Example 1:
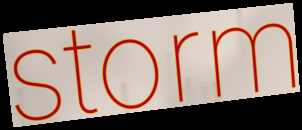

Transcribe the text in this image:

storm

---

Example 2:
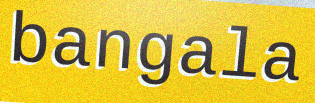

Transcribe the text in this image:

bangala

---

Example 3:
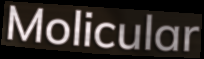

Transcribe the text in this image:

Molicular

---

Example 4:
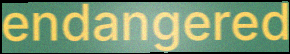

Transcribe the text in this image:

endangered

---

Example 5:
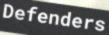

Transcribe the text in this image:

Defenders